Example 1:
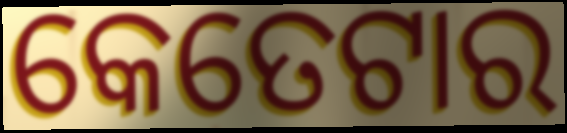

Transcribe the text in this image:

କେତେଟାର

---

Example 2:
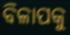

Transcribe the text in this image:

ବିଳାପକୁ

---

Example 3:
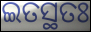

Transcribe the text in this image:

ଇତସ୍ଥତଃ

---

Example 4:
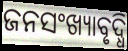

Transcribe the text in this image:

ଜନସଂଖ୍ୟାବୃଦ୍ଧି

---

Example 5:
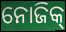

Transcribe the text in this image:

ନୋଜିକ୍